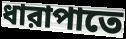
ধারাপাতে